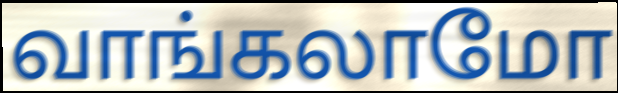
வாங்கலாமோ